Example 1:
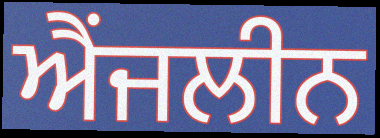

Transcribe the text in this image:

ਐਂਜਲੀਨ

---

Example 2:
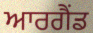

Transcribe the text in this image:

ਆਰਗੈਂਡ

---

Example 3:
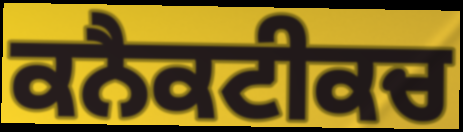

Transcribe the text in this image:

ਕਨੈਕਟੀਕਚ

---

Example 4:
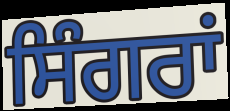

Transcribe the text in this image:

ਸਿੰਗਰਾਂ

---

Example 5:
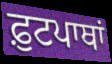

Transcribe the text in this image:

ਫ਼ੁਟਪਾਥਾਂ